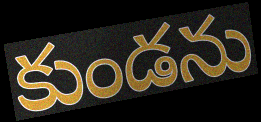
కుండను